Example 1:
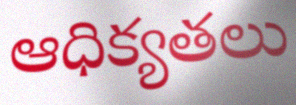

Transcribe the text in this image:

ఆధిక్యతలు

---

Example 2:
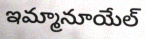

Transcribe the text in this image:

ఇమ్మానూయేల్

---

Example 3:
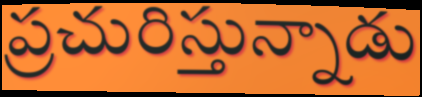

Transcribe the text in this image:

ప్రచురిస్తున్నాడు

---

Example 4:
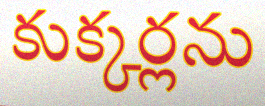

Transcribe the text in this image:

కుక్కర్లను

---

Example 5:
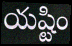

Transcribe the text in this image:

యష్టిం